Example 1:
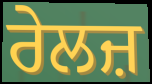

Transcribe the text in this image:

ਰੇਲਜ਼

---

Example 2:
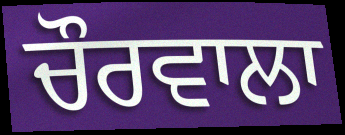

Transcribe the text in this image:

ਚੌਰਵਾਲਾ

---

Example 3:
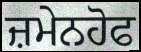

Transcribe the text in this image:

ਜ਼ਮੇਨਹੋਫ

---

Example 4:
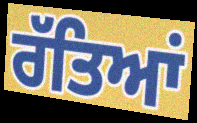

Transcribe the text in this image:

ਰੱਤਿਆਂ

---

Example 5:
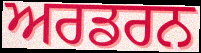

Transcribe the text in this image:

ਅਰਡਰਨ